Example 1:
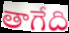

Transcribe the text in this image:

తాగేది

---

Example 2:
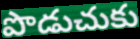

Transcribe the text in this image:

పొడుచుకు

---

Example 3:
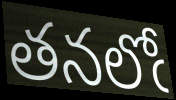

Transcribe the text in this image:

తనలోఁ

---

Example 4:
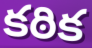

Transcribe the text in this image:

కఠిక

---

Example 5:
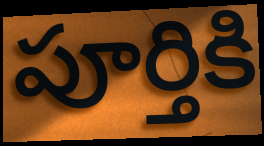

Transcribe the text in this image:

పూర్తికి